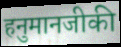
हनुमानजीकी